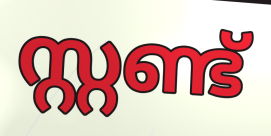
സ്റ്റണ്ട്